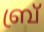
ബ്ര്